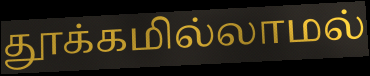
தூக்கமில்லாமல்